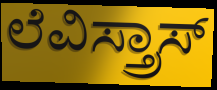
ಲೆವಿಸ್ತ್ರಾಸ್